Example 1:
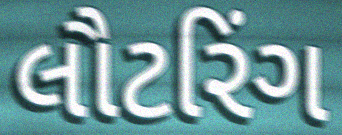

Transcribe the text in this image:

લૌટરિંગ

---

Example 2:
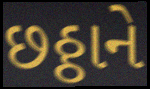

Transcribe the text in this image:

છઠ્ઠાને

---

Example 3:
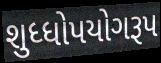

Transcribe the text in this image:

શુધ્ધોપયોગરૂપ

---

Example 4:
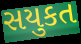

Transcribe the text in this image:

સયુકત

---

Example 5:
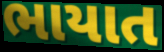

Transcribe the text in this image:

ભાયાત